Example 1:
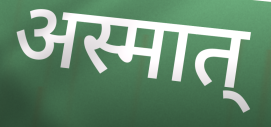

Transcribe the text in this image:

अस्मात्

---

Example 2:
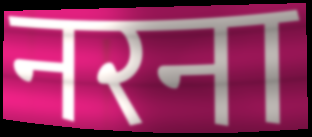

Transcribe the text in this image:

नरना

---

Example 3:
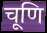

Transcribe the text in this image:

चूणि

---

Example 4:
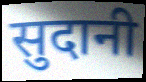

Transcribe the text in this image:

सुदानी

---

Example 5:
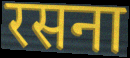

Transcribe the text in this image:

रसना